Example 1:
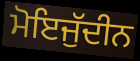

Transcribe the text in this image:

ਮੋਇਜੁੱਦੀਨ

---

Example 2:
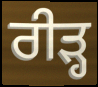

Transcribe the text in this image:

ਰੀੜ੍ਹ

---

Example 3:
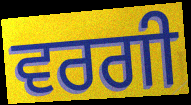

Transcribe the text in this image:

ਵਰਗੀ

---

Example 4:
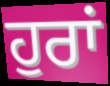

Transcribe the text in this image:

ਹੁਰਾਂ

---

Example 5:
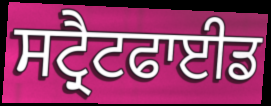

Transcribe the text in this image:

ਸਟ੍ਰੈਟਫਾਈਡ